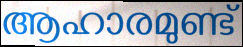
ആഹാരമുണ്ട്